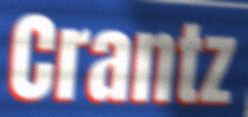
Crantz